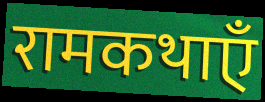
रामकथाएँ